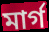
মার্গ